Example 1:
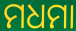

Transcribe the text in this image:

ମଧମା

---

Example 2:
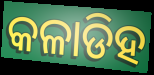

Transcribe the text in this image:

କଳାଡିହ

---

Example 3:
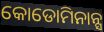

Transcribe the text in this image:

କୋଡୋମିନାନ୍ସ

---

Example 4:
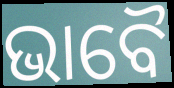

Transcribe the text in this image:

ଭାବୈ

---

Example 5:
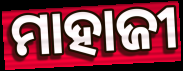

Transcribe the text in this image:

ମାହାଜୀ